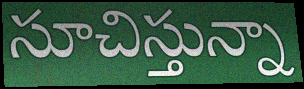
సూచిస్తున్నా